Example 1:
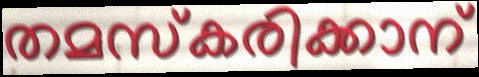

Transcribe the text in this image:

തമസ്കരിക്കാന്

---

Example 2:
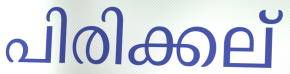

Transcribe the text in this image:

പിരിക്കല്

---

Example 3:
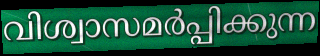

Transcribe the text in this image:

വിശ്വാസമർപ്പിക്കുന്ന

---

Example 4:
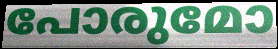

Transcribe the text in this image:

പോരുമോ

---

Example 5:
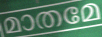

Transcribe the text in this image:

മാതമേ